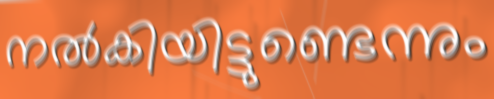
നൽകിയിട്ടുണ്ടെന്നും